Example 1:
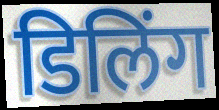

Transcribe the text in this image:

डिलिंग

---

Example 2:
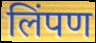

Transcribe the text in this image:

लिंपण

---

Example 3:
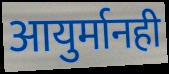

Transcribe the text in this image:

आयुर्मानही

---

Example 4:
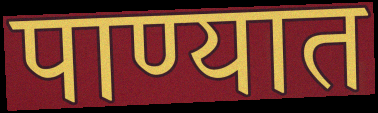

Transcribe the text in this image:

पाण्यात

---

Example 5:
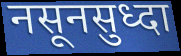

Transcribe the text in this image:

नसूनसुध्दा